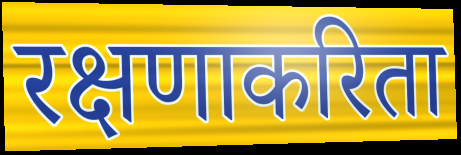
रक्षणाकरिता